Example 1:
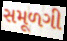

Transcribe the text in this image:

સમૂળગી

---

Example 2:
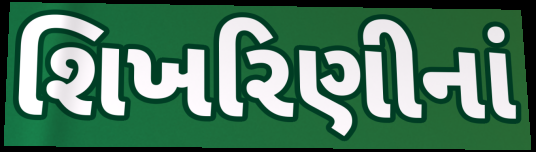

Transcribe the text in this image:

શિખરિણીનાં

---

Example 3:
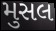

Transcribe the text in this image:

મુસલ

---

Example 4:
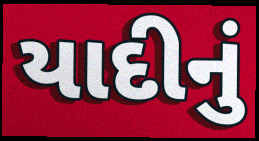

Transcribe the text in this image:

યાદીનું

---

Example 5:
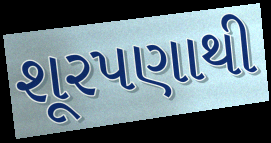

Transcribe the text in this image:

શૂરપણાથી